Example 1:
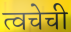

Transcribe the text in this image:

त्वचेची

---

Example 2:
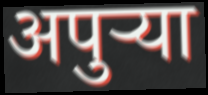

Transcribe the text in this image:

अपुर्‍या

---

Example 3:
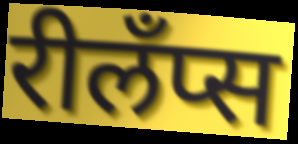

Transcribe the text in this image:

रीलँप्स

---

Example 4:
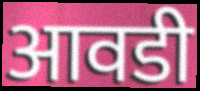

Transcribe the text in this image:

आवडी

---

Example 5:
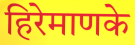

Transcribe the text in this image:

हिरेमाणके